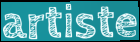
artiste